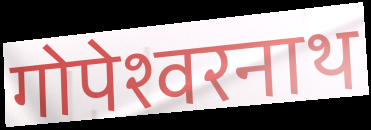
गोपेश्वरनाथ